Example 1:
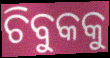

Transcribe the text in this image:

ଚିବୁକକୁ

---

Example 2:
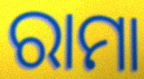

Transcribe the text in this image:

ରାମା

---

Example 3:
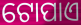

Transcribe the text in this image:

ଟୋପାଏ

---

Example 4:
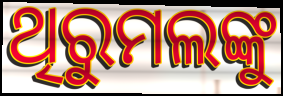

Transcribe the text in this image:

ଥିରୁମଲଙ୍କୁ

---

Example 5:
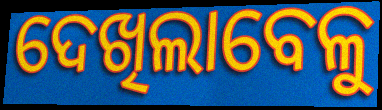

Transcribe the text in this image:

ଦେଖିଲାବେଳୁ